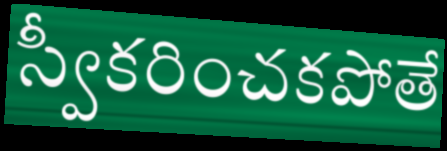
స్వీకరించకపోతే